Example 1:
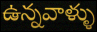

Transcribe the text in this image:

ఉన్నవాళ్ళు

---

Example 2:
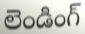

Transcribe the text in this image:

లెండింగ్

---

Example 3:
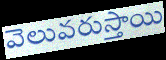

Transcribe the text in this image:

వెలువరుస్తాయి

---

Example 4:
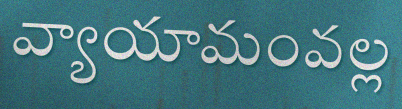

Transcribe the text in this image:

వ్యాయామంవల్ల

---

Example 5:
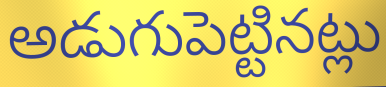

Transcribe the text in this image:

అడుగుపెట్టినట్లు